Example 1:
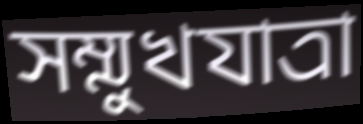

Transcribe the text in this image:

সম্মুখযাত্রা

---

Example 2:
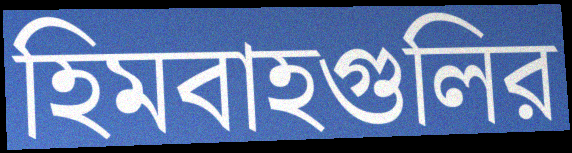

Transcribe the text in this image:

হিমবাহগুলির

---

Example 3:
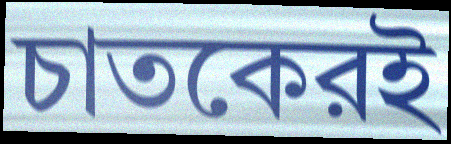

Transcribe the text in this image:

চাতকেরই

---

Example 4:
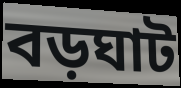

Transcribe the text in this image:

বড়ঘাট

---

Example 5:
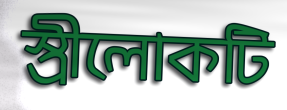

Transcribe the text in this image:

স্ত্রীলোকটি